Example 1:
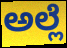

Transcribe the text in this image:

ಅಲ್ಲೆ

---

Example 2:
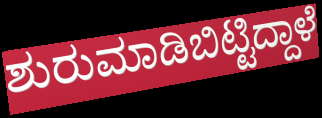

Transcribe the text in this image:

ಶುರುಮಾಡಿಬಿಟ್ಟಿದ್ದಾಳೆ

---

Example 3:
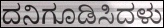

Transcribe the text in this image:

ದನಿಗೂಡಿಸಿದಳು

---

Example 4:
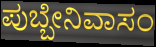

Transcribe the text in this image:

ಪುಬ್ಬೇನಿವಾಸಂ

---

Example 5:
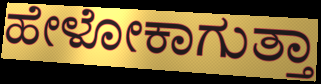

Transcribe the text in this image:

ಹೇಳೋಕಾಗುತ್ತಾ